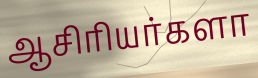
ஆசிரியர்களா